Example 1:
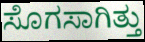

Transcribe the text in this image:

ಸೊಗಸಾಗಿತ್ತು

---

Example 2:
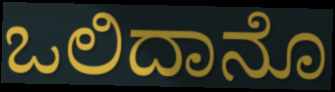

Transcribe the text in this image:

ಒಲಿದಾನೊ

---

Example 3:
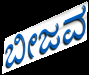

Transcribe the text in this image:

ಬೀಜವ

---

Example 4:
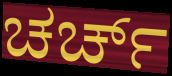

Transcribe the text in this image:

ಚರ್ಚ್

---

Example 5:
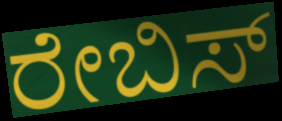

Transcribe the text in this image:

ರೇಬಿಸ್